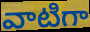
వాటిగా